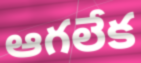
ఆగలేక